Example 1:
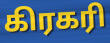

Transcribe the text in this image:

கிரகரி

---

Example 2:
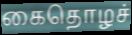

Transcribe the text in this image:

கைதொழச்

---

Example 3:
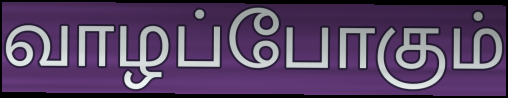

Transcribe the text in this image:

வாழப்போகும்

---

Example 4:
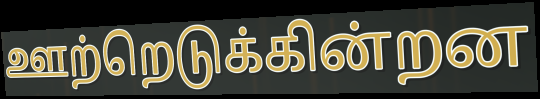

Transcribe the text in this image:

ஊற்றெடுக்கின்றன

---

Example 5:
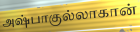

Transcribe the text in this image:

அஷ்பாகுல்லாகான்